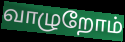
வாழுறோம்